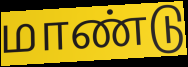
மாண்டு